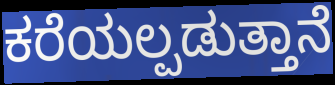
ಕರೆಯಲ್ಪಡುತ್ತಾನೆ